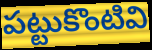
పట్టుకొంటివి